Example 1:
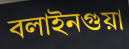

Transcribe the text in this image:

বলাইনগুয়া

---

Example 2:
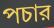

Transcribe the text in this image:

পচার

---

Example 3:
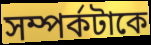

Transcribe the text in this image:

সম্পর্কটাকে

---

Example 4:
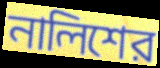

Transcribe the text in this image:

নালিশের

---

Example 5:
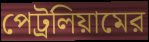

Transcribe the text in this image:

পেট্রলিয়ামের